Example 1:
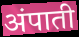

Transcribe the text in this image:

अंपाती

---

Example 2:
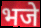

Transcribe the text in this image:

भजे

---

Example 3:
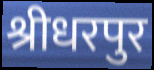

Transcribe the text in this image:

श्रीधरपुर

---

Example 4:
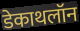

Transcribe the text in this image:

डेकाथलॉन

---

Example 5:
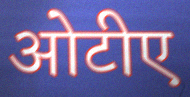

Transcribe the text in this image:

ओटीए